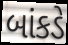
બાંકડે